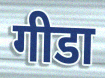
गीडा